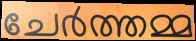
ചേർത്തമ്മ